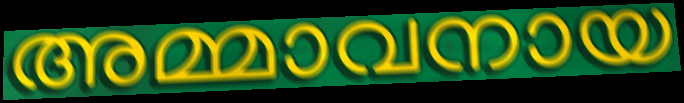
അമ്മാവനായ